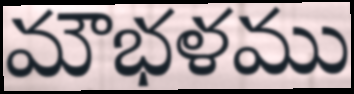
మౌభళము